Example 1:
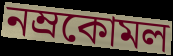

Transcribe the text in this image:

নম্রকোমল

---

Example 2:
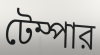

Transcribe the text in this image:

টেম্পার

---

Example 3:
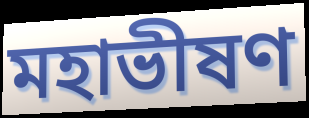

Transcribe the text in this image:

মহাভীষণ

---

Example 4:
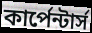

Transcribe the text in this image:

কার্পেন্টার্স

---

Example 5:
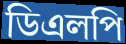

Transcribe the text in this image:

ডিএলপি